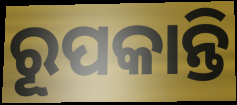
ରୂପକାନ୍ତି